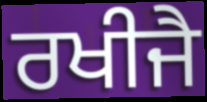
ਰਖੀਜੈ